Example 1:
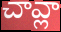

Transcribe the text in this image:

చావ్లా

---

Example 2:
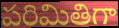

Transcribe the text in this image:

పరిమితిగా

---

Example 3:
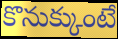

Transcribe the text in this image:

కొనుక్కుంటే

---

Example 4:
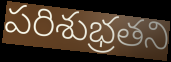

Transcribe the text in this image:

పరిశుభ్రతని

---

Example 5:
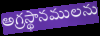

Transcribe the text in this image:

అగ్రస్థానములను